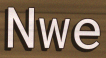
Nwe